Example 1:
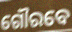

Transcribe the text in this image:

ଗୌରବେ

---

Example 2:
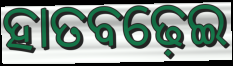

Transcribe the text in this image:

ହାତବଢ଼େଇ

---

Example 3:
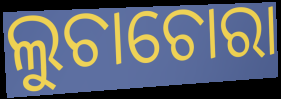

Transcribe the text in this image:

ଲୁଚାଚୋରା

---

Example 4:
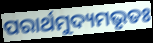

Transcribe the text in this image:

ପରାର୍ଥମୁଦ୍ୟମଭୃତଃ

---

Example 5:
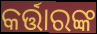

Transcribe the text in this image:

କର୍ତ୍ତାରଙ୍କ